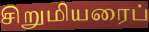
சிறுமியரைப்